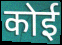
कोई